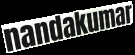
nandakumar